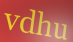
vdhu